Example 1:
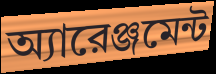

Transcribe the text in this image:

অ্যারেঞ্জমেন্ট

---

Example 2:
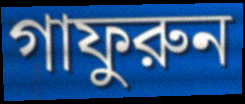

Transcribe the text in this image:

গাফুরুন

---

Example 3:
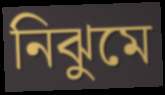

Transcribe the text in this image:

নিঝুমে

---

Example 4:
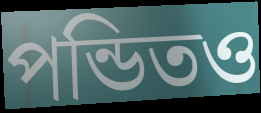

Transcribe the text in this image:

পন্ডিতও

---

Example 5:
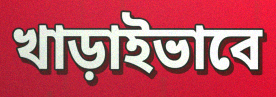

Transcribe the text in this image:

খাড়াইভাবে